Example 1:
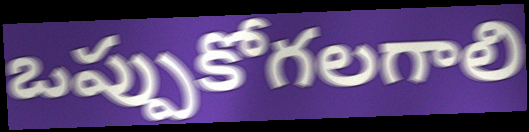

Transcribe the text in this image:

ఒప్పుకోగలగాలి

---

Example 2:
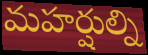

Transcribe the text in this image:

మహర్షుల్ని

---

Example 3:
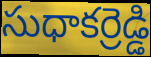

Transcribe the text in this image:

సుధాకర్రెడ్డి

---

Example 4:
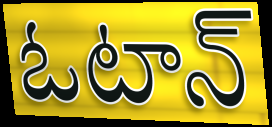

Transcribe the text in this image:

ఓటాన్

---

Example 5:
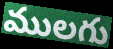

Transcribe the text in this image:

ములగు